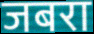
जबरा